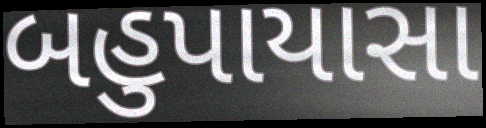
બહુપાયાસા